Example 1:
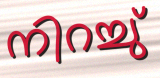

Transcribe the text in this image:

നിറച്ചു്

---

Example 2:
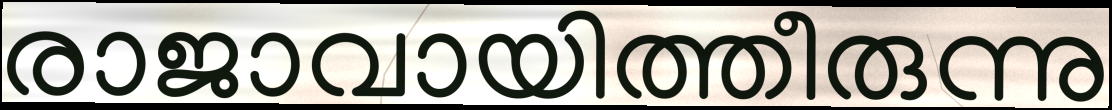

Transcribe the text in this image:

രാജാവായിത്തീരുന്നു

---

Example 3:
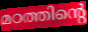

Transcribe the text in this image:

മഠത്തിന്റെ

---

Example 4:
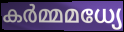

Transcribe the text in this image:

കർമ്മമധ്യേ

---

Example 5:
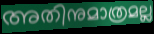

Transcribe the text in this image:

അതിനുമാത്രമല്ല